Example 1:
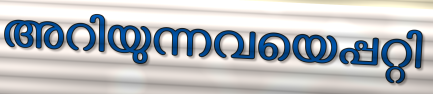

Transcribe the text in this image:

അറിയുന്നവയെപ്പറ്റി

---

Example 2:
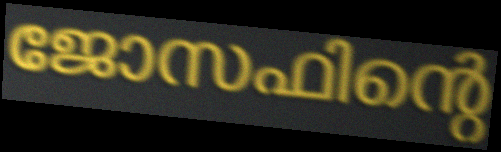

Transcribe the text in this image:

ജോസഫിന്റെ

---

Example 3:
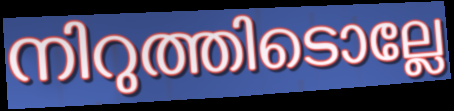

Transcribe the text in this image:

നിറുത്തിടൊല്ലേ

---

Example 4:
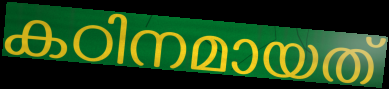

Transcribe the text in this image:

കഠിനമായത്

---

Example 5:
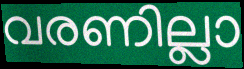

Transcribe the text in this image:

വരണില്ലാ